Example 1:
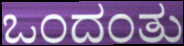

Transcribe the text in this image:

ಒಂದಂತು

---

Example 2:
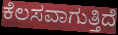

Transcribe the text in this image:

ಕೆಲಸವಾಗುತ್ತಿದೆ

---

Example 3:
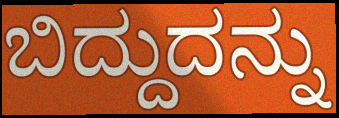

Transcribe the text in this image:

ಬಿದ್ದುದನ್ನು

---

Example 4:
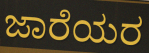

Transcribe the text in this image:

ಜಾರೆಯರ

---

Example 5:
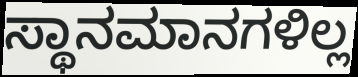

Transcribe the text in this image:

ಸ್ಥಾನಮಾನಗಳಿಲ್ಲ